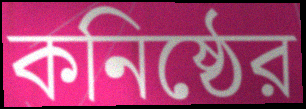
কনিষ্ঠের